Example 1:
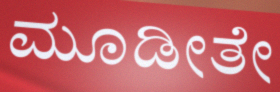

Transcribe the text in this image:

ಮೂಡೀತೇ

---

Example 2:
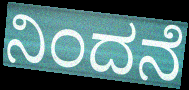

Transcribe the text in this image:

ನಿಂದನೆ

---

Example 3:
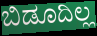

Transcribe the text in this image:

ಬಿಡೂದಿಲ್ಲ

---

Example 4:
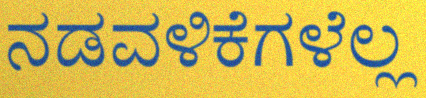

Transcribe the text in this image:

ನಡವಳಿಕೆಗಳೆಲ್ಲ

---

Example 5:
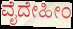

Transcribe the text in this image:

ವೈದೇಹೀಂ